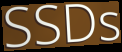
SSDs